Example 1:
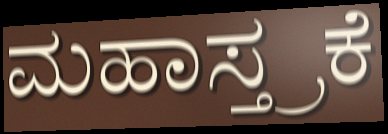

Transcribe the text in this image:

ಮಹಾಸ್ತ್ರಕೆ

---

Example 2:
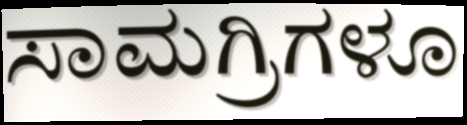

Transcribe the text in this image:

ಸಾಮಗ್ರಿಗಳೂ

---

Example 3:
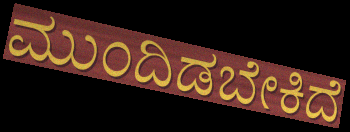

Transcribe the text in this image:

ಮುಂದಿಡಬೇಕಿದೆ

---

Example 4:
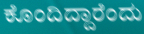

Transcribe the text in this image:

ಕೊಂದಿದ್ದಾರೆಂದು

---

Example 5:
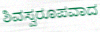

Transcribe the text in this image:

ಶಿವಸ್ವರೂಪವಾದ